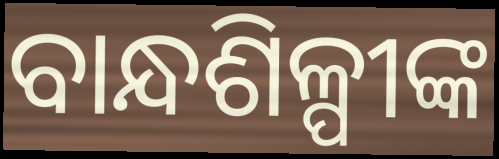
ବାନ୍ଧଶିଳ୍ପୀଙ୍କ